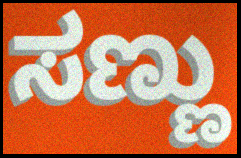
ಸಣ್ಣು